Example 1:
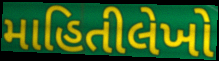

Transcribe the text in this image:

માહિતીલેખો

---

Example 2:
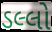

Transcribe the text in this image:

ડલ્લો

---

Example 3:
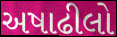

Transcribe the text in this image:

અષાઢીલો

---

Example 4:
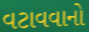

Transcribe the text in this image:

વટાવવાનો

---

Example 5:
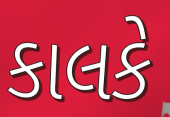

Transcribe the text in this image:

કાલકે